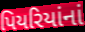
પિયરિયાંનાં